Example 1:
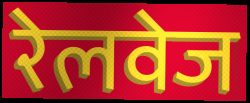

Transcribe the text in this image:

रेलवेज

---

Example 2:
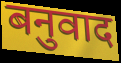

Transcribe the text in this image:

बनुवाद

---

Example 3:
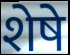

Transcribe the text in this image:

शेषे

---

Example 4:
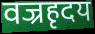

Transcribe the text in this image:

वज्रहृदय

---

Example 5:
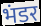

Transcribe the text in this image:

भंडर